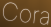
Cora